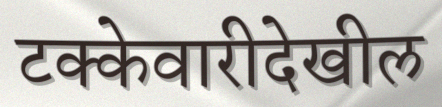
टक्केवारीदेखील